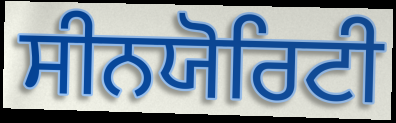
ਸੀਨਯੋਰਿਟੀ